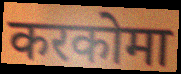
करकोमा